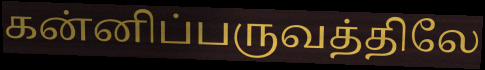
கன்னிப்பருவத்திலே